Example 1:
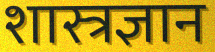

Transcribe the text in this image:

शास्त्रज्ञान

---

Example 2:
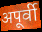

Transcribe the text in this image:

अपूर्वी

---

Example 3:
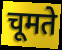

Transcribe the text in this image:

चूमते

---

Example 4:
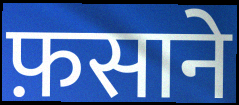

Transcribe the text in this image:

फ़साने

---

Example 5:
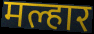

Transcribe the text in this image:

मल्हार